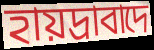
হায়দ্রাবাদে